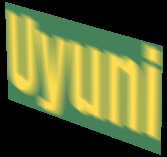
Uyuni